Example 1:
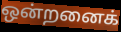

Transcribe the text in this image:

ஒன்றனைக்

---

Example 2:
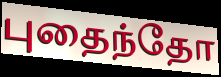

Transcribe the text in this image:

புதைந்தோ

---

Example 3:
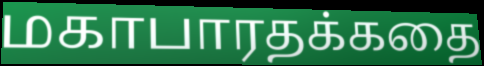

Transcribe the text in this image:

மகாபாரதக்கதை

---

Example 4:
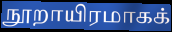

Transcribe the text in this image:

நூறாயிரமாகக்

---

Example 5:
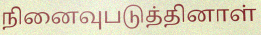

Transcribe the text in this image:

நினைவுபடுத்தினாள்